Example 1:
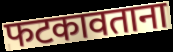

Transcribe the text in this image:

फटकावताना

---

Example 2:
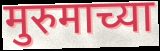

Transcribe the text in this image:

मुरुमाच्या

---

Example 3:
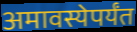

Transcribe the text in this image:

अमावस्येपर्यंत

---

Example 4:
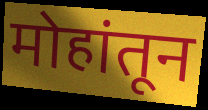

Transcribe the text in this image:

मोहांतून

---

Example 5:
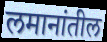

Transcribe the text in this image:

लमानांतील